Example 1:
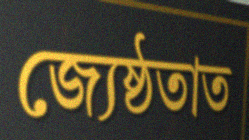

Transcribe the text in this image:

জ্যেষ্ঠতাত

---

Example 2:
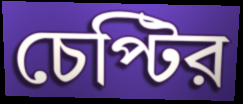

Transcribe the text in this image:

চেপ্টির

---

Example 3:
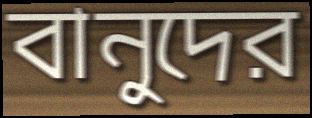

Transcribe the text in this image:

বানুদের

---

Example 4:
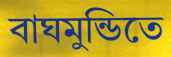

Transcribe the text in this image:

বাঘমুন্ডিতে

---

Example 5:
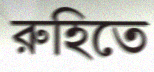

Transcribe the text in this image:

রুহিতে